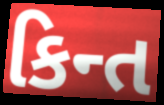
કિન્ત